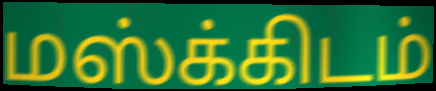
மஸ்க்கிடம்